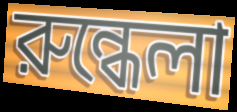
রুন্ধেলা